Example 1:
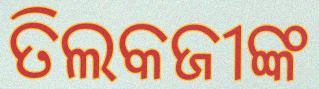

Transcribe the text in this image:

ତିଲକଜୀଙ୍କ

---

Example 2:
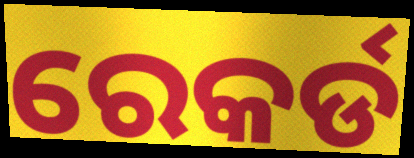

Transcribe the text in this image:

ରେକର୍ଡ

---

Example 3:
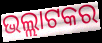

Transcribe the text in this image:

ଭଲ୍ଲାଟକର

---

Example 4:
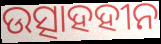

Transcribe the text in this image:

ଉତ୍ସାହହୀନ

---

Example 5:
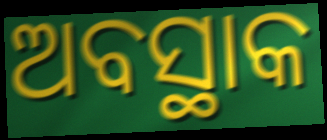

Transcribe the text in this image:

ଅବସ୍ଥାକ